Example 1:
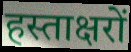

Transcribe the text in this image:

हस्ताक्षरों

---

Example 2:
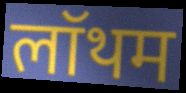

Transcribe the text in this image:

लॉथम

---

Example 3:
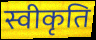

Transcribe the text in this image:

स्वीकृति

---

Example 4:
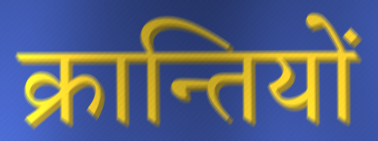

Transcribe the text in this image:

क्रान्तियों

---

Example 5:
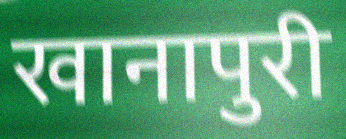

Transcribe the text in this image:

खानापुरी